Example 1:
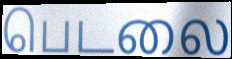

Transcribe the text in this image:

பெடலை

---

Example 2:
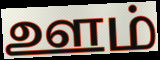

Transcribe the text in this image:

ஊம்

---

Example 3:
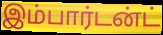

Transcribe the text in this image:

இம்பார்டன்ட்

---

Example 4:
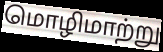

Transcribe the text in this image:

மொழிமாற்று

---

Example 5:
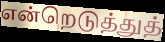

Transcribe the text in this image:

என்றெடுத்துத்